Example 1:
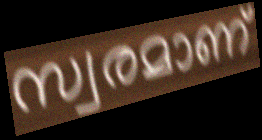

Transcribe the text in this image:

സ്വരമാണ്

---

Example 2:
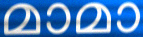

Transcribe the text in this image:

മാമാ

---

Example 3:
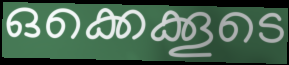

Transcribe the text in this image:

ഒക്കെക്കൂടെ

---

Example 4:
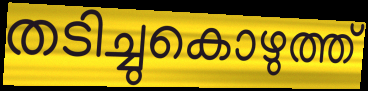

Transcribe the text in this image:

തടിച്ചുകൊഴുത്ത്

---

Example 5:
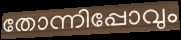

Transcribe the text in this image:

തോന്നിപ്പോവും